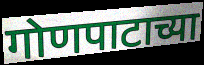
गोणपाटाच्या